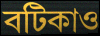
বটিকাও